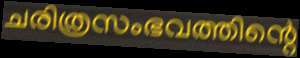
ചരിത്രസംഭവത്തിന്റെ